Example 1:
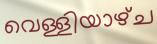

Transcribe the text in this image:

വെള്ളിയാഴ്‌ച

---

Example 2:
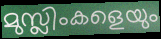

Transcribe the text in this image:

മുസ്ലിംകളെയും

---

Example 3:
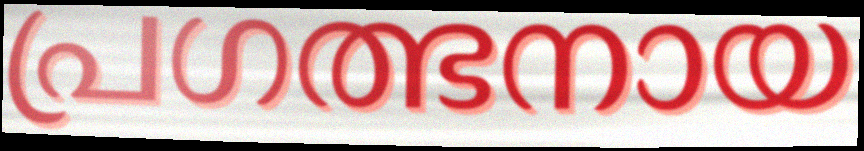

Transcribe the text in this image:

പ്രഗത്ഭനായ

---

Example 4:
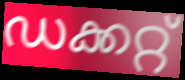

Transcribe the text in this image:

ഡക്കറ്റ്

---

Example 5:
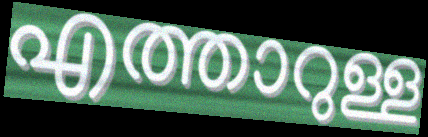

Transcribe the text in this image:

എത്താറുള്ള